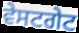
ਵੇਸਟਗੇਟ